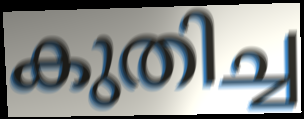
കുതിച്ച